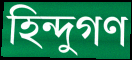
হিন্দুগণ